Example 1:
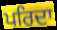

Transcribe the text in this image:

ਪਰਿਦਾ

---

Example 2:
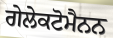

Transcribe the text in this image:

ਗੇਲੇਕਟੋਮੈਨਨ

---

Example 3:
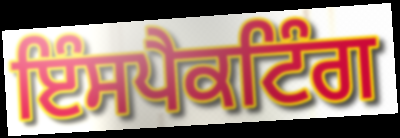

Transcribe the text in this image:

ਇੰਸਪੈਕਟਿੰਗ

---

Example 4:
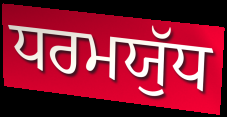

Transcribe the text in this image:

ਧਰਮਯੁੱਧ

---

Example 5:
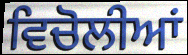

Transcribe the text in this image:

ਵਿਚੋਲੀਆਂ